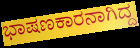
ಭಾಷಣಕಾರನಾಗಿದ್ದ